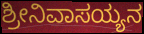
ಶ್ರೀನಿವಾಸಯ್ಯನ